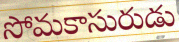
సోమకాసురుడు